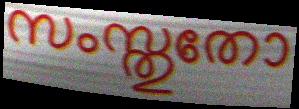
സംസ്തുതോ